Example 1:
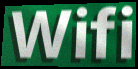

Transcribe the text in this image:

Wifi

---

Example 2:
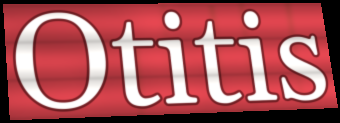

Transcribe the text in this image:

Otitis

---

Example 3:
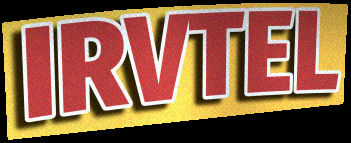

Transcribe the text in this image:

IRVTEL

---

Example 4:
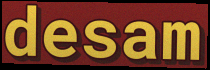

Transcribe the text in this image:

desam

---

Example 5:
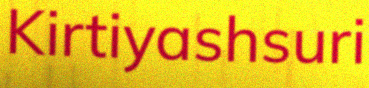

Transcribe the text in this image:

Kirtiyashsuri